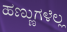
ಹಣ್ಣುಗಳೆಲ್ಲ